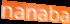
nanaba